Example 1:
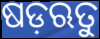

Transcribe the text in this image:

ଷଡ଼ଋତୁ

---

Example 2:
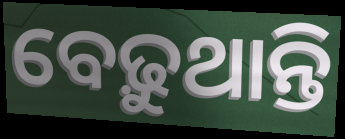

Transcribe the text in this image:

ବେଢ଼ୁଥାନ୍ତି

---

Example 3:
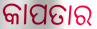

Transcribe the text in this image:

କାପତାର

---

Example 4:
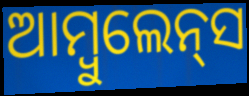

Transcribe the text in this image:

ଆମ୍ବୁଲେନ୍‍ସ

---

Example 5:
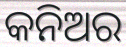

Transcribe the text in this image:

କନିଅର